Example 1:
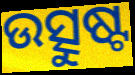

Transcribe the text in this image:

ଉତ୍ସୁଷ୍ଟ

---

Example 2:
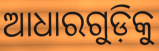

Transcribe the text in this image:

ଆଧାରଗୁଡ଼ିକୁ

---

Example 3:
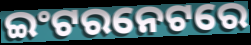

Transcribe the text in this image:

ଇଂଟରନେଟରେ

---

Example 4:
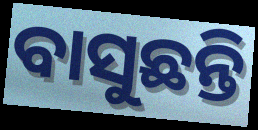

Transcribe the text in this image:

ବାସୁଛନ୍ତି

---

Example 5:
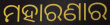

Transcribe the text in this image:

ମହାରଣାର